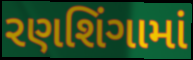
રણશિંગામાં